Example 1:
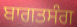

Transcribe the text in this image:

ਬਾਗਤਸੰਗ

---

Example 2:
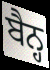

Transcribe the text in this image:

ਬੈਨ੍ਹ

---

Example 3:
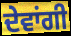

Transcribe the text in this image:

ਦੇਵਾਂਗੀ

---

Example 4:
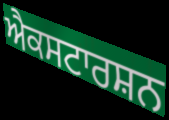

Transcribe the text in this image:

ਐਕਸਟਾਰਸ਼ਨ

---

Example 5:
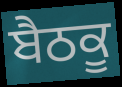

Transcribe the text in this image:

ਬੈਠਕੂ